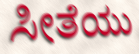
ಸೀತೆಯು